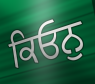
ਕਿਓਨੁ